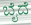
ಬೈದೆ